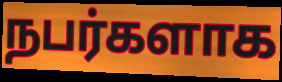
நபர்களாக